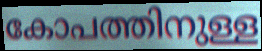
കോപത്തിനുള്ള